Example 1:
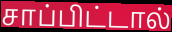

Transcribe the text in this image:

சாப்பிட்டால்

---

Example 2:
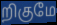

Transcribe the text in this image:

றிகுமே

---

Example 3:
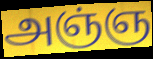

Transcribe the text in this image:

அஞ்ஞ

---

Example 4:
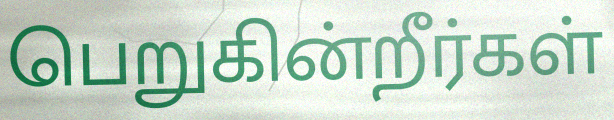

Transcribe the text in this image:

பெறுகின்றீர்கள்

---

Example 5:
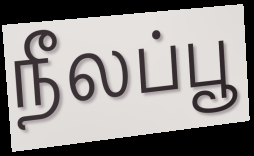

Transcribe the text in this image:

நீலப்பூ